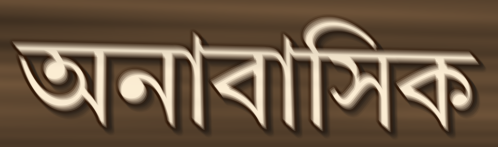
অনাবাসিক